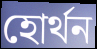
হোর্থন